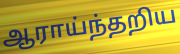
ஆராய்ந்தறிய